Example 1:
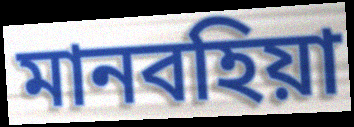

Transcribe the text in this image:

মানবহিয়া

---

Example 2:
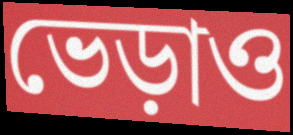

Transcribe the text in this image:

ভেড়াও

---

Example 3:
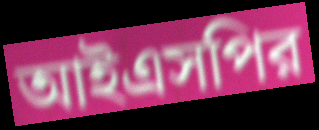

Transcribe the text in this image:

আইএসপির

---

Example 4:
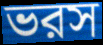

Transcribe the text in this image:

ভরস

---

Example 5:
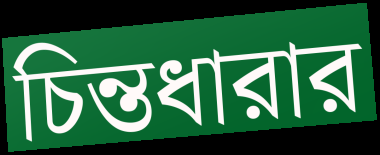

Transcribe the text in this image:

চিন্তধারার